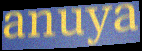
anuya